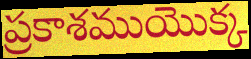
ప్రకాశముయొక్క